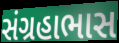
સંગ્રહાભાસ